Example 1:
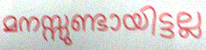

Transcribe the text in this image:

മനസ്സുണ്ടായിട്ടല്ല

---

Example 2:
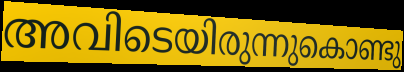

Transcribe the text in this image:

അവിടെയിരുന്നുകൊണ്ടു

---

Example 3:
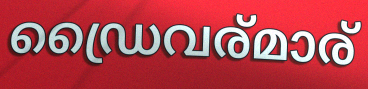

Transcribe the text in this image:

ഡ്രൈവര്മാര്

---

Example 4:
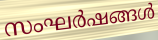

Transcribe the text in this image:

സംഘർഷങ്ങൾ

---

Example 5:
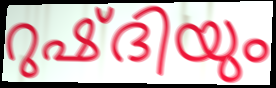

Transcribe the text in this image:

റുഷ്ദിയും